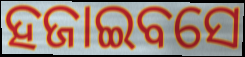
ହଜାଇବସେ